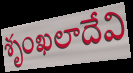
శృంఖలాదేవి